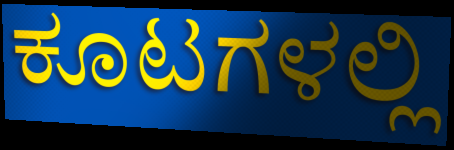
ಕೂಟಗಳಲ್ಲಿ